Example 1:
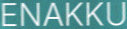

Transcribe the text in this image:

ENAKKU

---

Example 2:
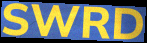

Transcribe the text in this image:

SWRD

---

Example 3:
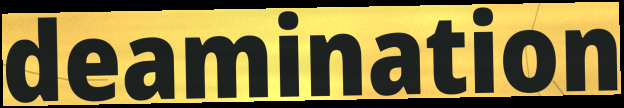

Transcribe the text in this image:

deamination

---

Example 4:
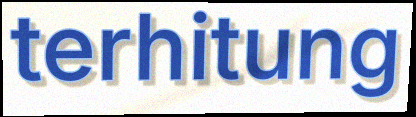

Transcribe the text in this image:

terhitung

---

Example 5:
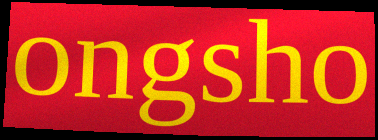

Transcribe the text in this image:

ongsho